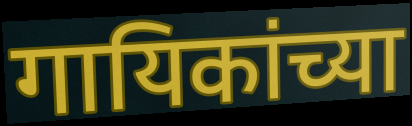
गायिकांच्या